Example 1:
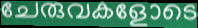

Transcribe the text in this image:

ചേരുവകളോടെ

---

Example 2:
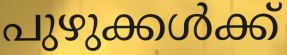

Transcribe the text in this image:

പുഴുക്കൾക്ക്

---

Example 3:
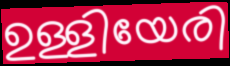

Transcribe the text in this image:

ഉള്ളിയേരി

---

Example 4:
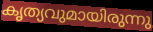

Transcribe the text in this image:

കൃത്യവുമായിരുന്നു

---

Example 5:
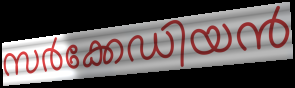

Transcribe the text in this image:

സർക്കേഡിയൻ